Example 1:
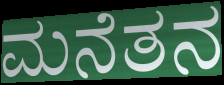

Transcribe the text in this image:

ಮನೆತನ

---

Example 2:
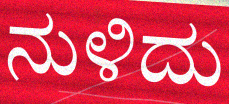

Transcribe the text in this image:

ನುಳಿದು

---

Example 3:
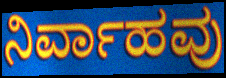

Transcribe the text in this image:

ನಿರ್ವಾಹವು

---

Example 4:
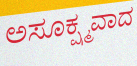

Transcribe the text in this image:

ಅಸೂಕ್ಷ್ಮವಾದ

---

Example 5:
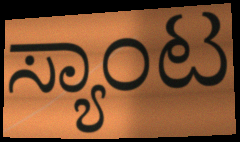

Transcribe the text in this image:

ಸ್ಯಾಂಟ